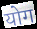
योग